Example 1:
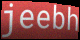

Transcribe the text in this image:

jeebh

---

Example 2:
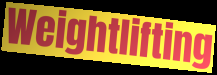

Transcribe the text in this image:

Weightlifting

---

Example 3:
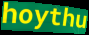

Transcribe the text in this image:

hoythu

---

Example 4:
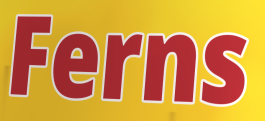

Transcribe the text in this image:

Ferns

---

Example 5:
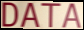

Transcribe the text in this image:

DATA